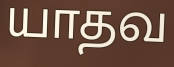
யாதவ